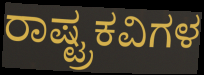
ರಾಷ್ಟ್ರಕವಿಗಳ